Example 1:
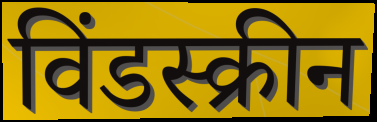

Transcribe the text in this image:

विंडस्क्रीन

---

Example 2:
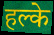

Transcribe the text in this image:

हल्‍के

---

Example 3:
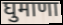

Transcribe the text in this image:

घुमाणा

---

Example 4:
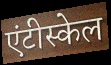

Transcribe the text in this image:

एंटीस्केल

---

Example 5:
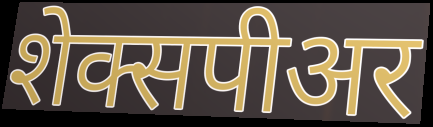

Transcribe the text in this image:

शेक्सपीअर